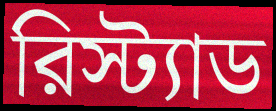
রিস্ট্যাড